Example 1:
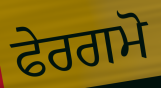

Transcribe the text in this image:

ਫੇਰਗਮੋ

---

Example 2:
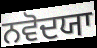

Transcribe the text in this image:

ਨਵੋਦਯਾ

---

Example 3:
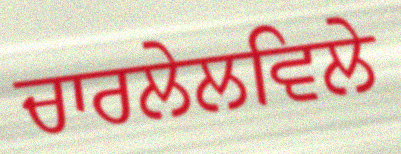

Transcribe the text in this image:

ਚਾਰਲੇਲਵਿਲੇ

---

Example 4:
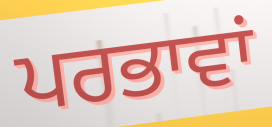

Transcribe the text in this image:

ਪਰਭਾਵਾਂ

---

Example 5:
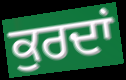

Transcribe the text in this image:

ਕੁਰਦਾਂ